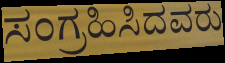
ಸಂಗ್ರಹಿಸಿದವರು